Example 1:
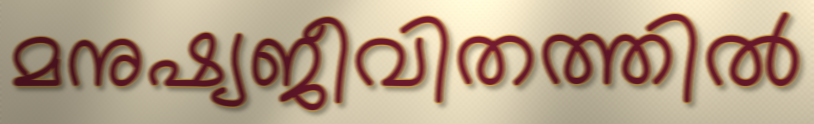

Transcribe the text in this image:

മനുഷ്യജീവിതത്തിൽ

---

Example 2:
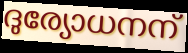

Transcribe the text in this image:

ദുര്യോധനന്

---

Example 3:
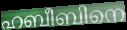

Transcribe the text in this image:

ഹബീബിനെ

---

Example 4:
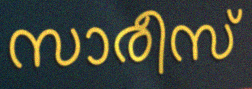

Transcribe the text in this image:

സാരീസ്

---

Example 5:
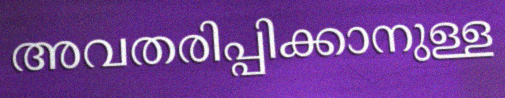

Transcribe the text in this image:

അവതരിപ്പിക്കാനുള്ള